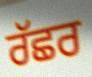
ਰੱਛਰ